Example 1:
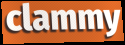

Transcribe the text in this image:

clammy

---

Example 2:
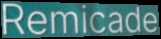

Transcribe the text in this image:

Remicade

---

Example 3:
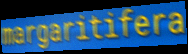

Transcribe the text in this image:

margaritifera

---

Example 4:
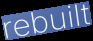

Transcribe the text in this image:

rebuilt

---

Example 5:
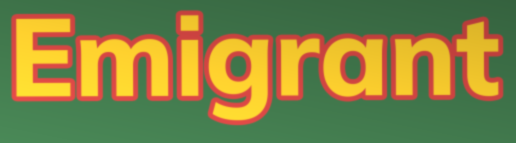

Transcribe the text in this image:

Emigrant